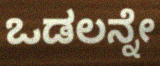
ಒಡಲನ್ನೇ